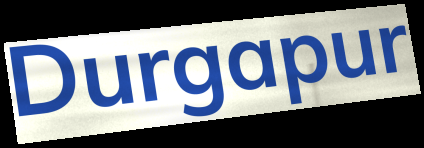
Durgapur